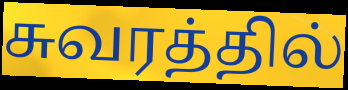
சுவரத்தில்